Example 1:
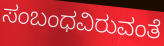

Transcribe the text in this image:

ಸಂಬಂಧವಿರುವಂತೆ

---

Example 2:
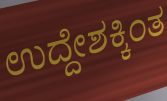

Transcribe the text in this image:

ಉದ್ದೇಶಕ್ಕಿಂತ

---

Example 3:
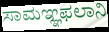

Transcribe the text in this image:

ಸಾಮಞ್ಞಫಲಾನಿ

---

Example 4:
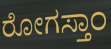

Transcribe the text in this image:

ರೋಗಸ್ತಾಂ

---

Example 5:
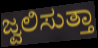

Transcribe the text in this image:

ಜ್ವಲಿಸುತ್ತಾ